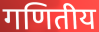
गणितीय